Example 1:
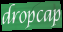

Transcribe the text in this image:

dropcap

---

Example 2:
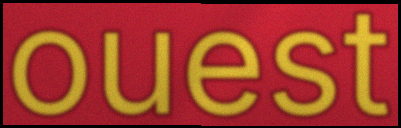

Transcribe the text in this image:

ouest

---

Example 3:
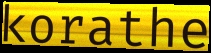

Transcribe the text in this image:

korathe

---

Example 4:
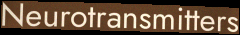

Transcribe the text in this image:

Neurotransmitters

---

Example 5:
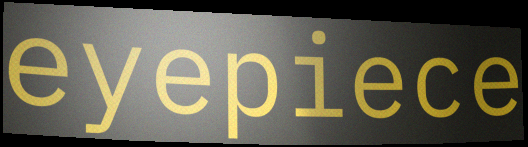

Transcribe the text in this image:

eyepiece